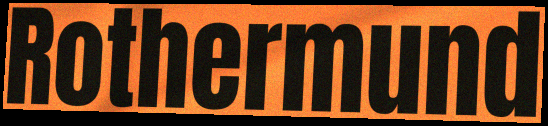
Rothermund